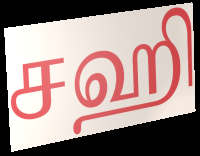
சஹி